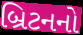
બ્રિટનનો